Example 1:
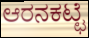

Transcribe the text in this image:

ಆರನಕಟ್ಟೆ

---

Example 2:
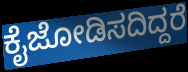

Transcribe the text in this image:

ಕೈಜೋಡಿಸದಿದ್ದರೆ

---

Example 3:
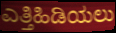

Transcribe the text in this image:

ಎತ್ತಿಹಿಡಿಯಲು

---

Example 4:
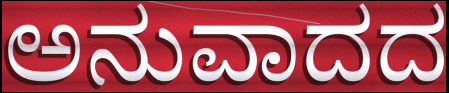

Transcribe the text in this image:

ಅನುವಾದದ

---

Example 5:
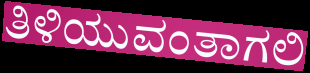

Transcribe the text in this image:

ತಿಳಿಯುವಂತಾಗಲಿ